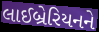
લાઈબ્રેરિયનને